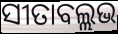
ସୀତାବଲ୍ଲଭ